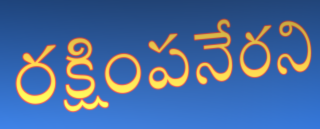
రక్షింపనేరని